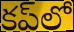
కప్‌లో